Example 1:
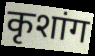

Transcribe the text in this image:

कृशांग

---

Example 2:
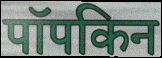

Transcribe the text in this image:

पॉपकिन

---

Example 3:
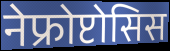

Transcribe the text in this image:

नेफ्रोप्टोसिस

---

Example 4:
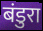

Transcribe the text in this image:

बंडुरा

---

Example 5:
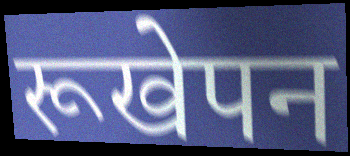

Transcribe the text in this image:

रूखेपन